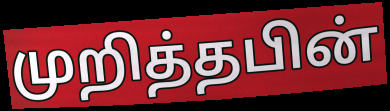
முறித்தபின்